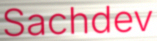
Sachdev